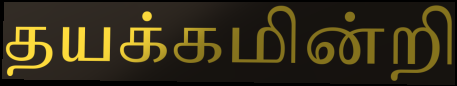
தயக்கமின்றி